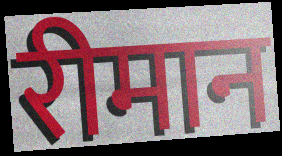
रीमान